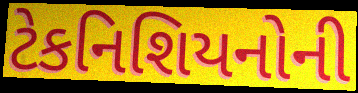
ટેકનિશિયનોની